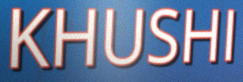
KHUSHI